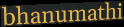
bhanumathi